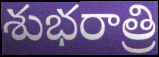
శుభరాత్రి